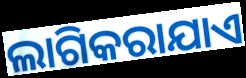
ଲାଗିକରାଯାଏ